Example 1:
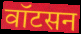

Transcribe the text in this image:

वॉटसन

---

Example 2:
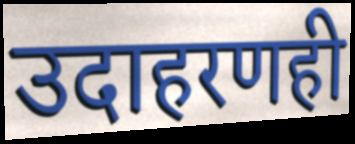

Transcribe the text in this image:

उदाहरणही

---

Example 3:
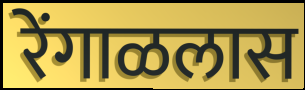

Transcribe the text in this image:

रेंगाळलास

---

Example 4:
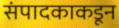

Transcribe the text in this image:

संपादकाकडून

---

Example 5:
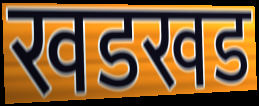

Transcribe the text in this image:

खडखड